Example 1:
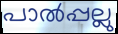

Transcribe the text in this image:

പാൽപ്പല്ലു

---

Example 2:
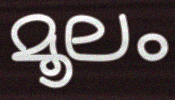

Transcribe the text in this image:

മൂലം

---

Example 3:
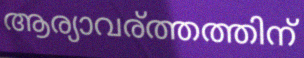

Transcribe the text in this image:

ആര്യാവര്ത്തത്തിന്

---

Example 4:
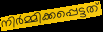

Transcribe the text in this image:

നിർമ്മിക്കപ്പെട്ടത്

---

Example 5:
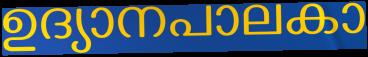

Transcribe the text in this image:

ഉദ്യാനപാലകാ